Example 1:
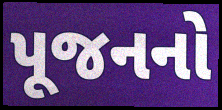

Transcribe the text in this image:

પૂજનનો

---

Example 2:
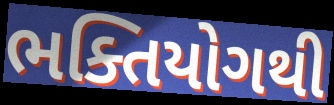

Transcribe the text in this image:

ભક્તિયોગથી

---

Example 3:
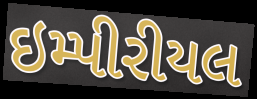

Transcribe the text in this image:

ઇમ્પીરીયલ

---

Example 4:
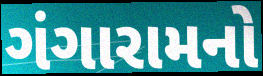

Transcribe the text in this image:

ગંગારામનો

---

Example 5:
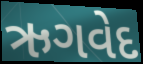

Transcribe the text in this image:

ઋગવેદ